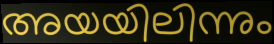
അയയിലിന്നും